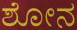
ಶೋನ